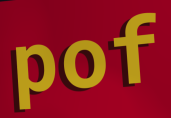
pof